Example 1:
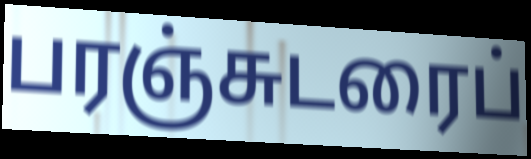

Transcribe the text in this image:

பரஞ்சுடரைப்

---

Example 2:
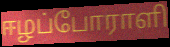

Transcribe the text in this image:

ஈழப்போராளி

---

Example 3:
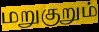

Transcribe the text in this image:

மறுகுறும்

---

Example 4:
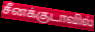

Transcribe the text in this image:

சீனக்குடாவில்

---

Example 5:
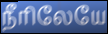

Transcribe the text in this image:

நீரிலேயே